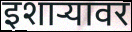
इशाऱ्यावर